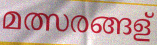
മത്സരങ്ങള്